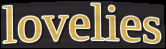
lovelies